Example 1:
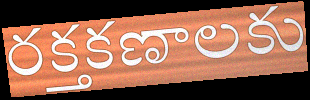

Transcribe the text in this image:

రక్తకణాలకు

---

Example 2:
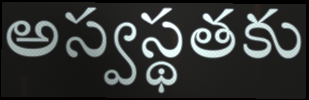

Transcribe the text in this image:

అస్వస్థతకు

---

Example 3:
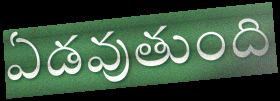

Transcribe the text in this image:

ఏడవుతుంది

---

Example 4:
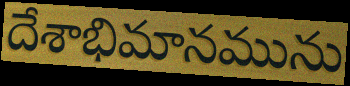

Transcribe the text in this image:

దేశాభిమానమును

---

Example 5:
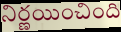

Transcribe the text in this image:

నిర్ణయించింది